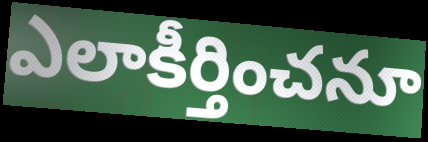
ఎలాకీర్తించనూ